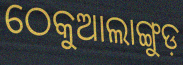
ଠେକୁଆଲାଙ୍ଗୁଡ଼